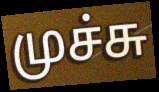
முச்சு